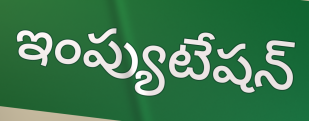
ఇంప్యుటేషన్